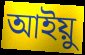
আইয়ু